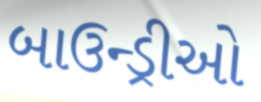
બાઉન્ડ્રીઓ